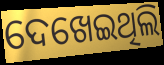
ଦେଖେଇଥିଲି